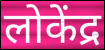
लोकेंद्र